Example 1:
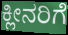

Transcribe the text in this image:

ಕ್ಲೀನರಿಗೆ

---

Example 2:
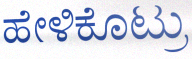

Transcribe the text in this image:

ಹೇಳಿಕೊಟ್ರು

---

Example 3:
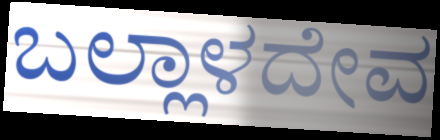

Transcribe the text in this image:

ಬಲ್ಲಾಳದೇವ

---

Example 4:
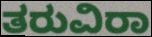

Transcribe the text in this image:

ತರುವಿರಾ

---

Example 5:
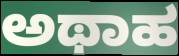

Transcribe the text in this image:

ಅಥಾಹ